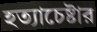
হত্যাচেষ্টার